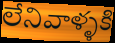
లేనివాళ్ళకి